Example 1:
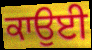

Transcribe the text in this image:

ਕਾਉਈ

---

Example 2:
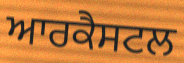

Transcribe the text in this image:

ਆਰਕੈਸਟਲ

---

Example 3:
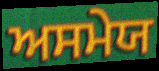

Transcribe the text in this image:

ਅਸਮੇਯ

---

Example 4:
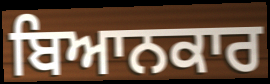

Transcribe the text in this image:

ਬਿਆਨਕਾਰ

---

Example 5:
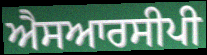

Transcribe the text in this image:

ਐਸਆਰਸੀਪੀ